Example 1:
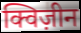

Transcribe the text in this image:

क्विज़ीन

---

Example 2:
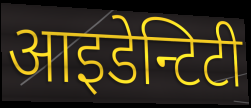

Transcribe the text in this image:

आइडेन्टिटी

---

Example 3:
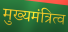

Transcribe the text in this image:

मुख्यमंत्रित्व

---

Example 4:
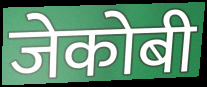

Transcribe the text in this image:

जेकोबी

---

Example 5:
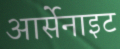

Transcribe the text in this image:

आर्सेनाइट